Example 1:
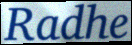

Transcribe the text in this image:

Radhe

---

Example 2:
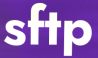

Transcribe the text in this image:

sftp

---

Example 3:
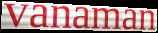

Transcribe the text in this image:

vanaman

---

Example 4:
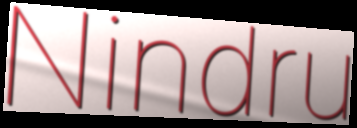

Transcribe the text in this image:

Nindru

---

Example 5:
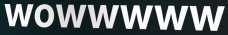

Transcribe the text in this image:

wowwwww